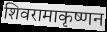
शिवरामाकृष्णन